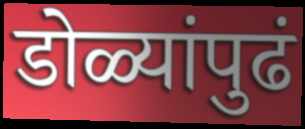
डोळ्यांपुढं